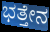
ಭತ್ತೇನ